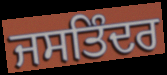
ਜਸਤਿੰਦਰ